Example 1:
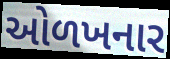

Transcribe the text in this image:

ઓળખનાર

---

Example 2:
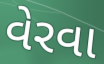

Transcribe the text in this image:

વેરવા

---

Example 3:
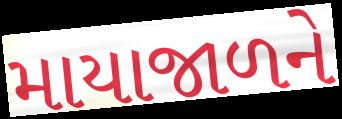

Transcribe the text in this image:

માયાજાળને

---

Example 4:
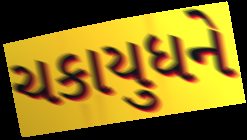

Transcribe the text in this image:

ચકાયુધને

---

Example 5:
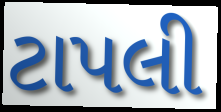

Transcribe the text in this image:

ટાપલી